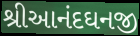
શ્રીઆનંદઘનજી